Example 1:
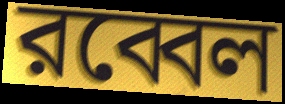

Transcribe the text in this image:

রব্বেল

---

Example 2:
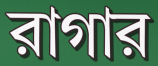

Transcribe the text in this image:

রাগার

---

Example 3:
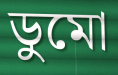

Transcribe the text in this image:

ডুমো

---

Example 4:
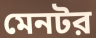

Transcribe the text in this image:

মেনটর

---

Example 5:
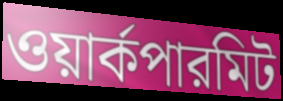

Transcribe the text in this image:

ওয়ার্কপারমিট